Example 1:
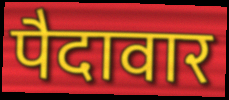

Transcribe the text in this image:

पैदावार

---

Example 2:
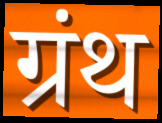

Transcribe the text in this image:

ग्रंथ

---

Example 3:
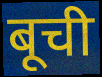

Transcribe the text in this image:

बूची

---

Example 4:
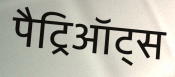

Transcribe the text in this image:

पैट्रिऑट्स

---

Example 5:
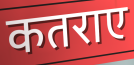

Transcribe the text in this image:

कतराए